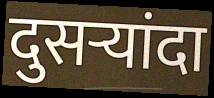
दुसर्‍यांदा